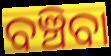
ବଞ୍ଚିବା